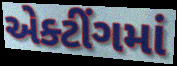
એક્ટીંગમાં